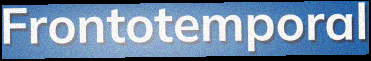
Frontotemporal